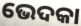
ଭେଦକା